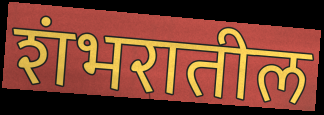
शंभरातील